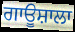
ਗਾਊਸ਼ਾਲਾ